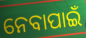
ନେବାପାଇଁ